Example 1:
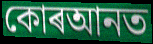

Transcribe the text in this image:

কোৰআনত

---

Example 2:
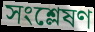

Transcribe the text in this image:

সংশ্লেষণ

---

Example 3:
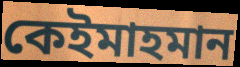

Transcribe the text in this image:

কেইমাহমান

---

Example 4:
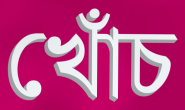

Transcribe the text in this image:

খোঁচ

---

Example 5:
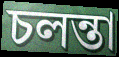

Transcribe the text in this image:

চলন্তা